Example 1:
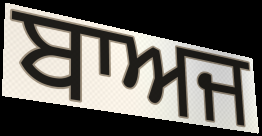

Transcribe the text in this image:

ਬਾਅਜ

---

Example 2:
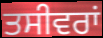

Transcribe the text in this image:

ਤਸੀਵਰਾਂ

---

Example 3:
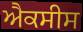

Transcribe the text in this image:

ਐਕਸੀਸ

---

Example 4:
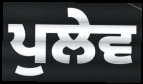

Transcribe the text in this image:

ਪੁਲੇਵ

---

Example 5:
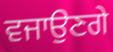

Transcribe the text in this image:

ਵਜਾਉਣਗੇ